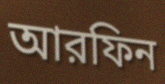
আরফিন